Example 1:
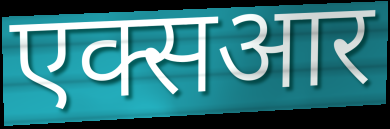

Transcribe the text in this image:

एक्सआर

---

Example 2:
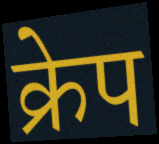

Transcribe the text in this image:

क्रेप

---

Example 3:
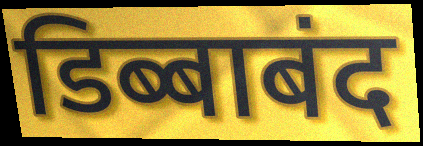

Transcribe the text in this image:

डिब्बाबंद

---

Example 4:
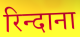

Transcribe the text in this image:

रिन्दाना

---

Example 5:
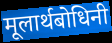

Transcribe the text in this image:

मूलार्थबोधिनी